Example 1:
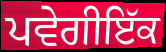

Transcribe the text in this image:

ਪਵੇਗੀਇੱਕ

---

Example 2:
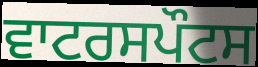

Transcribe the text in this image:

ਵਾਟਰਸਪੌਟਸ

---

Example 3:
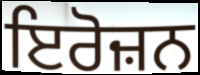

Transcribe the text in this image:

ਇਰੋਜ਼ਨ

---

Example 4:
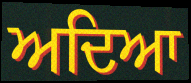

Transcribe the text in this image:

ਅਦਿਆ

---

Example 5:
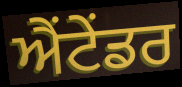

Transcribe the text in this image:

ਐਂਟੇਂਡਰ